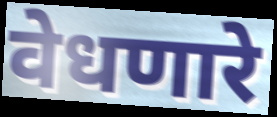
वेधणारे